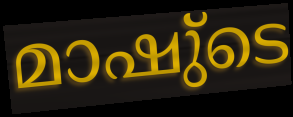
മാഷു്ടെ